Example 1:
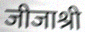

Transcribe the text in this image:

जीजाश्री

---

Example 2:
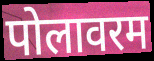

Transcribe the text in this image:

पोलावरम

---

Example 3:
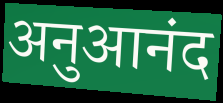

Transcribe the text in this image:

अनुआनंद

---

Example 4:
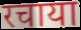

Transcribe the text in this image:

रचाया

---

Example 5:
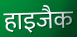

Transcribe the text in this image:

हाइजैक